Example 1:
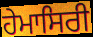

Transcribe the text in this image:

ਹੇਮਾਸਿਰੀ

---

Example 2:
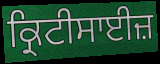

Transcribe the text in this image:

ਕ੍ਰਿਟੀਸਾਈਜ਼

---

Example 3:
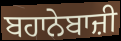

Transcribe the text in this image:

ਬਹਾਨੇਬਾਜ਼ੀ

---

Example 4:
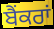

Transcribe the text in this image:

ਬੈਂਕਰਾਂ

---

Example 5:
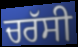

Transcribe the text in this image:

ਚਰੱਸੀ